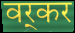
वर्कर